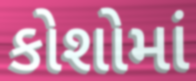
કોશોમાં